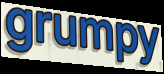
grumpy